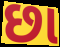
છા